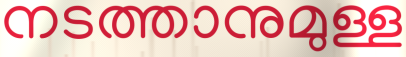
നടത്താനുമുള്ള